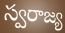
స్వరాజ్య